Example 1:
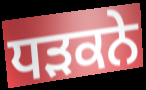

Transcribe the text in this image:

ਧਡ਼ਕਨੇ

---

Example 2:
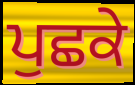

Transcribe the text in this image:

ਪੁਛਕੇ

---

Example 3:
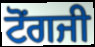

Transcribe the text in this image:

ਟੋਂਗਜੀ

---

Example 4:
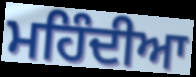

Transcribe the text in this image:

ਮਹਿੰਦੀਆ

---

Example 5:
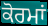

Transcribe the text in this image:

ਕੋਰਮਾਂ